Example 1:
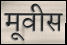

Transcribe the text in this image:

मूवीस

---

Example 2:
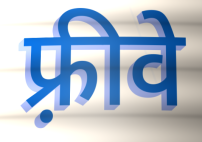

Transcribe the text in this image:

फ़्रीवे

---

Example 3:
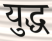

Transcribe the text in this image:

युद्ध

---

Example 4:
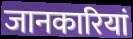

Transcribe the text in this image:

जानकारियां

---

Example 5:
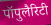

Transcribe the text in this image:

पॉपुलैरिटी